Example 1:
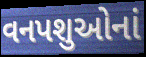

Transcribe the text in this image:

વનપશુઓનાં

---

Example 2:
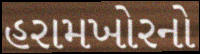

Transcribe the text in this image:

હરામખોરનો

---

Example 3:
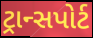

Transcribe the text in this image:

ટ્રાન્સપોર્ટ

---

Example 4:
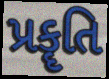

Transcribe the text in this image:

પ્રકૄતિ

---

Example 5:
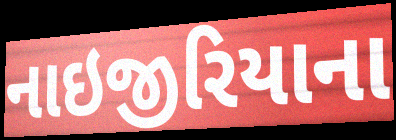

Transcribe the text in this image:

નાઇજીરિયાના